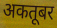
अकतूबर